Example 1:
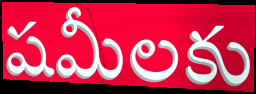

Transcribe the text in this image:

షమీలకు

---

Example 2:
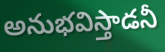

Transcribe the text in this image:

అనుభవిస్తాడనీ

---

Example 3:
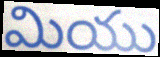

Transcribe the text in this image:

మియు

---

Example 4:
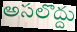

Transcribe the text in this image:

అసలొద్దు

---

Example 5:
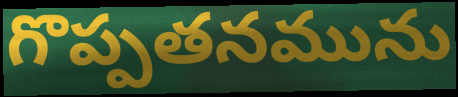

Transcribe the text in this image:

గొప్పతనమును